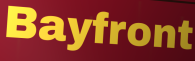
Bayfront